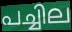
പച്ചില